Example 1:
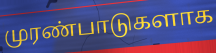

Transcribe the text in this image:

முரண்பாடுகளாக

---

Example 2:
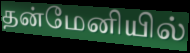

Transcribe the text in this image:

தன்மேனியில்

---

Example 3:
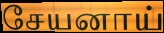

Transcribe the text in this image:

சேயனாய்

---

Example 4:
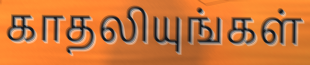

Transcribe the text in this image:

காதலியுங்கள்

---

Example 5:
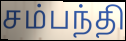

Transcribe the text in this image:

சம்பந்தி